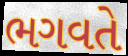
ભગવતે